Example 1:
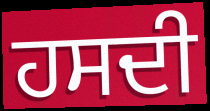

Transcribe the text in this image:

ਹਸਦੀ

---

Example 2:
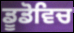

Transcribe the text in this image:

ਡੂਡੋਵਿਚ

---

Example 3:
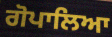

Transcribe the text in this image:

ਗੋਪਾਲਿਆ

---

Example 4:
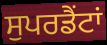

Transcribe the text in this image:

ਸੁਪਰਡੈਂਟਾਂ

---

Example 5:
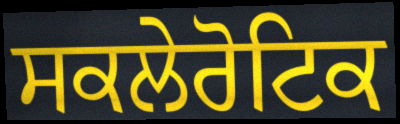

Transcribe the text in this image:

ਸਕਲੇਰੋਟਿਕ